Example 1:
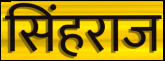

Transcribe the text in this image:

सिंहराज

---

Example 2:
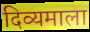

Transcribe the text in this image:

दिव्यमाला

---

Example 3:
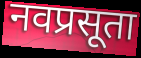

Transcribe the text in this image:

नवप्रसूता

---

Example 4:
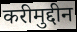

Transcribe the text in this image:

करीमुद्दीन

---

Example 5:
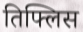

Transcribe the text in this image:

तिफ्लिस